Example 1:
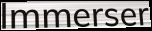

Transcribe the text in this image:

Immerser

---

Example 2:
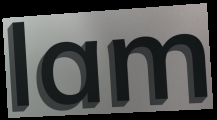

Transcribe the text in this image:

Iam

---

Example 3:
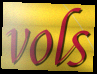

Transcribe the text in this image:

vols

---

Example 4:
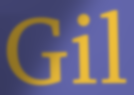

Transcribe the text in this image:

Gil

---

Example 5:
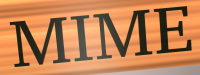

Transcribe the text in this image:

MIME